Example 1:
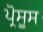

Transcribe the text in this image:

ਪ੍ਰੋਸੂਸ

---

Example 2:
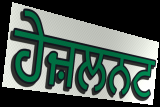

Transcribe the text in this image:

ਹੇਜ਼ਲਨਟ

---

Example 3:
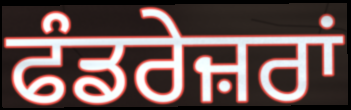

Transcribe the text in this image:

ਫੰਡਰੇਜ਼ਰਾਂ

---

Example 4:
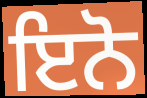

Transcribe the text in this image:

ਇਨੋ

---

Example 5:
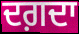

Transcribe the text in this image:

ਦਗ਼ਦਾ